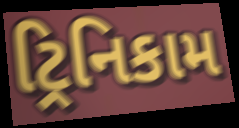
ટ્રિનિકામ